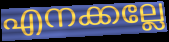
എനക്കല്ലേ